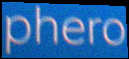
phero